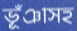
ভূঁঞাসহ